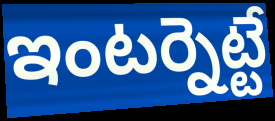
ఇంటర్నెట్టే